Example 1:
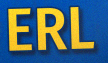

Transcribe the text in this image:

ERL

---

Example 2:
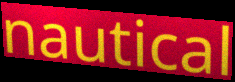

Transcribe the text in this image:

nautical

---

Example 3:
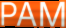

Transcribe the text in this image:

PAM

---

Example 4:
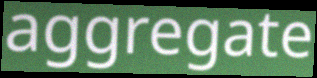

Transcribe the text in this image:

aggregate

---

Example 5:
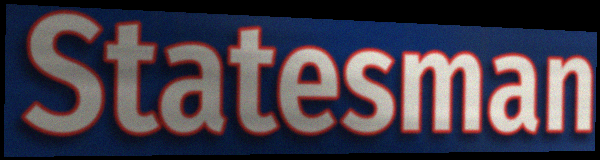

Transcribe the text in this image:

Statesman